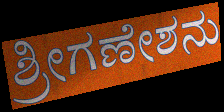
ಶ್ರೀಗಣೇಶನು